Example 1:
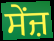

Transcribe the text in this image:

ਸੇਂਜ਼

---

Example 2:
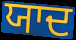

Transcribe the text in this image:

ਯਾਦ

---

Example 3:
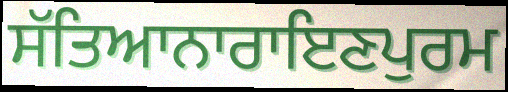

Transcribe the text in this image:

ਸੱਤਿਆਨਾਰਾਇਣਪੁਰਮ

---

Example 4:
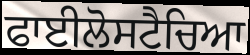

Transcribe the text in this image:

ਫਾਈਲੋਸਟੈਚਿਆ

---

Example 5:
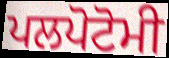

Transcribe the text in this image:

ਪਲਪੋਟੋਮੀ